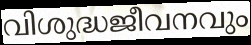
വിശുദ്ധജീവനവും